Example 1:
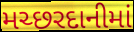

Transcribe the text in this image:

મચ્છરદાનીમાં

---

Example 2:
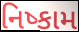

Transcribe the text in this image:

નિષ્કામ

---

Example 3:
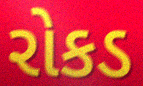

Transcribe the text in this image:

રોકડ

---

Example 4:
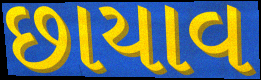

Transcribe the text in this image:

છાયાવ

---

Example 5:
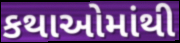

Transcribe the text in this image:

કથાઓમાંથી